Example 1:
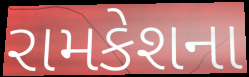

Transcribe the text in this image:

રામકેશના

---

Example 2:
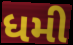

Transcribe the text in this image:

ધમી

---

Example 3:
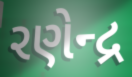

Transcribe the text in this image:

રણેન્દ્ર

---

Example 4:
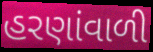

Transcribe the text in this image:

હરણાંવાળી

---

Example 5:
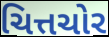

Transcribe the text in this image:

ચિત્તચોર